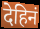
देहिनं